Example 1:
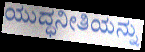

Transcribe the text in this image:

ಯುದ್ಧನೀತಿಯನ್ನು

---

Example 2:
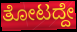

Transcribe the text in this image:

ತೋಟದ್ದೇ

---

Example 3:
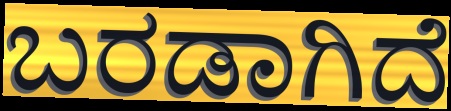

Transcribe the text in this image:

ಬರಡಾಗಿದೆ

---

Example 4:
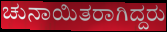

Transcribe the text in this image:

ಚುನಾಯಿತರಾಗಿದ್ದರು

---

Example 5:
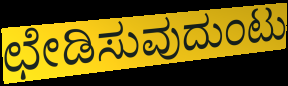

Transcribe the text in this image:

ಛೇಡಿಸುವುದುಂಟು